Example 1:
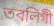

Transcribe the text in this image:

তবলিগী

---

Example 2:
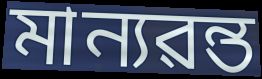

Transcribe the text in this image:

মান্যৱন্ত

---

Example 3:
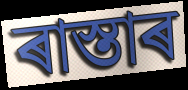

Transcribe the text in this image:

ৰাস্তাৰ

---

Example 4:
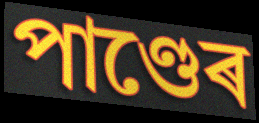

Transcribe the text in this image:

পাণ্ডেৰ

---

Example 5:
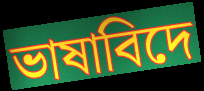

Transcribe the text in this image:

ভাষাবিদে